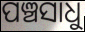
ପଞ୍ଚସାଧୁ